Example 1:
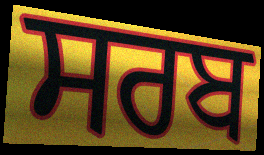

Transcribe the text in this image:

ਸਰਬ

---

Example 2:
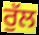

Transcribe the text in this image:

ਰੁੱਲ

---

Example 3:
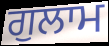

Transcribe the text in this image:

ਗੁਲਾਮ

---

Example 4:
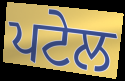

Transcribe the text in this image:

ਪਟੇਲ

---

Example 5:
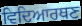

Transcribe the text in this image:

ਵਿਦਿਆਰਥਣ